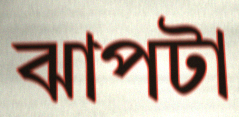
ঝাপটা